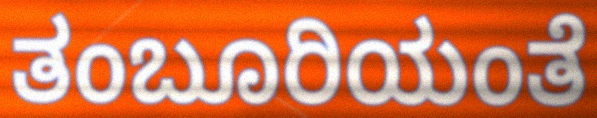
ತಂಬೂರಿಯಂತೆ